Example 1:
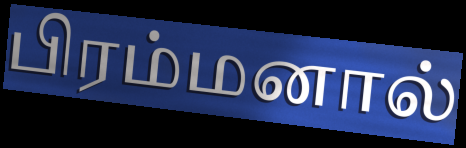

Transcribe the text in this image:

பிரம்மனால்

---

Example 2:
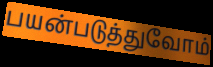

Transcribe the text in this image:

பயன்படுத்துவோம்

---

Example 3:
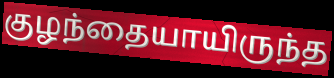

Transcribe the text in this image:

குழந்தையாயிருந்த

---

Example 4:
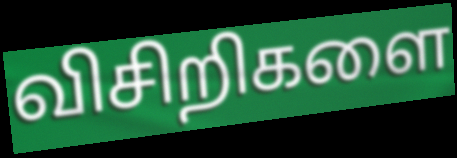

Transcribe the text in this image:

விசிறிகளை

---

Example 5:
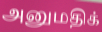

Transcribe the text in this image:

அனுமதிக்